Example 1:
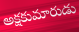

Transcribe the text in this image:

అక్షకుమారుడు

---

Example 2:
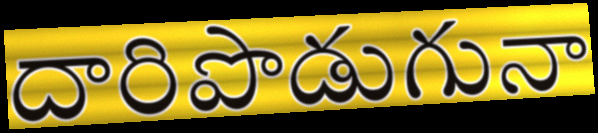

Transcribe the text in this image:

దారిపొడుగునా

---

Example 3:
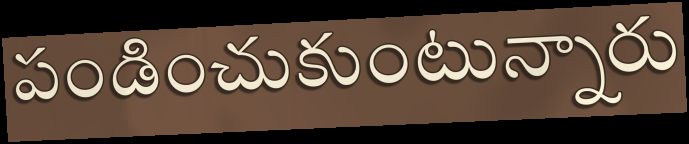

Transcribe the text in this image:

పండించుకుంటున్నారు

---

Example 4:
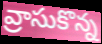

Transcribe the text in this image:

వ్రాసుకొన్న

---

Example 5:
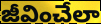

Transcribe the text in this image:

జీవించేలా